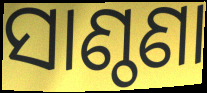
ସାଣ୍ଠଣା